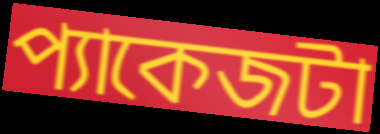
প্যাকেজটা